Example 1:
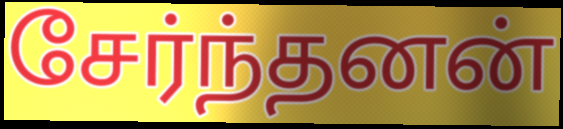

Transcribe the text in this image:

சேர்ந்தனன்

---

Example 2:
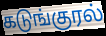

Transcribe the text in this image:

கடுங்குரல்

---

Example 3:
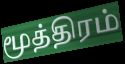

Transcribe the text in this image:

மூத்திரம்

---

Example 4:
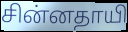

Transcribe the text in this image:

சின்னதாயி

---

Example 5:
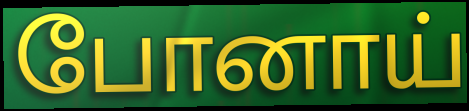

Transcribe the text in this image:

போனாய்